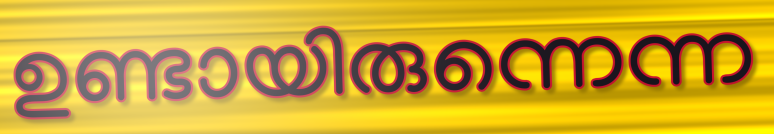
ഉണ്ടായിരുന്നെന്ന